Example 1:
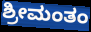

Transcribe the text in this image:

ಶ್ರೀಮಂತಂ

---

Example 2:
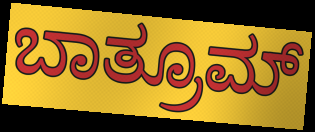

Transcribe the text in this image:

ಬಾತ್ರೂಮ್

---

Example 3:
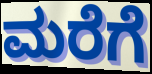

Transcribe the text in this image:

ಮರೆಗೆ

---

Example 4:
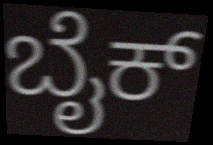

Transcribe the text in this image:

ಬೈಕ್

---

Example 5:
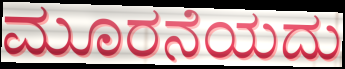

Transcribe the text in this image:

ಮೂರನೆಯದು